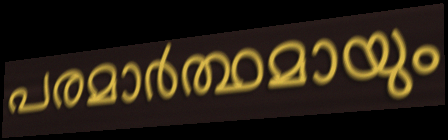
പരമാർത്ഥമായും